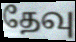
தேவு